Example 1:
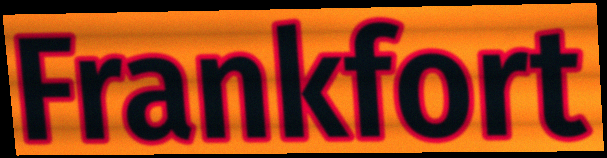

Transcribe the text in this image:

Frankfort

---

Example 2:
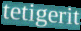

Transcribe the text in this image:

tetigerit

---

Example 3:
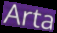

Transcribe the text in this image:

Arta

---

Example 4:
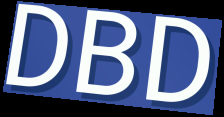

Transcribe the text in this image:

DBD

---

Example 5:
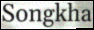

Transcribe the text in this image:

Songkha